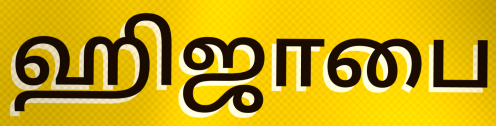
ஹிஜாபை